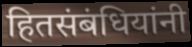
हितसंबंधियांनी